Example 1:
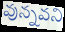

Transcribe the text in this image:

వున్నవని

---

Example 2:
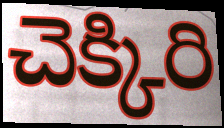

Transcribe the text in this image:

చెక్కిరి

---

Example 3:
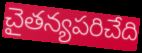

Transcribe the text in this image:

చైతన్యపరిచేది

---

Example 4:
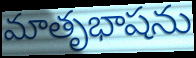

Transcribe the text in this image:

మాతృభాషను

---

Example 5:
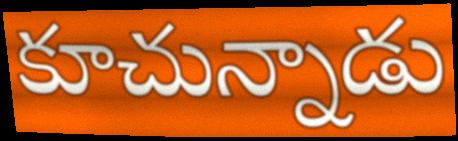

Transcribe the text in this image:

కూచున్నాడు